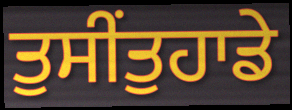
ਤੁਸੀਂਤੁਹਾਡੇ